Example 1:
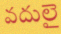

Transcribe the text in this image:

వదులై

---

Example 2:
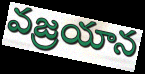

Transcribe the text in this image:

వజ్రయాన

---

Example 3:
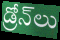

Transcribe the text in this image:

డ్రోన్‌లు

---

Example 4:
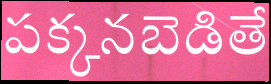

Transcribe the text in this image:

పక్కనబెడితే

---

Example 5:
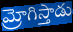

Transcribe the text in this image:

మ్రోగిస్తాడు